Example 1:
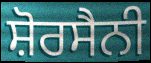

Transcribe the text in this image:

ਸ਼ੋਰਸੈਨੀ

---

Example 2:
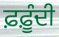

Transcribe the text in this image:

ਫ਼ਫ਼ੂੰਦੀ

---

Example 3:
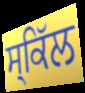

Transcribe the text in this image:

ਸ੍ਕਿੱਲ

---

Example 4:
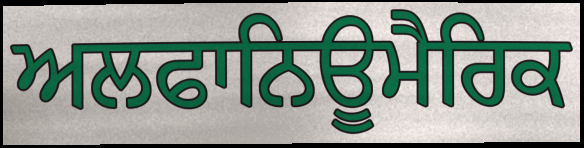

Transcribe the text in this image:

ਅਲਫਾਨਿਊਮੈਰਿਕ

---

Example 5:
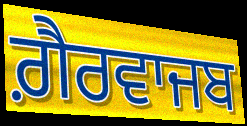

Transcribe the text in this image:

ਗ਼ੈਰਵਾਜਬ